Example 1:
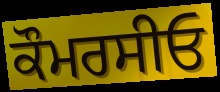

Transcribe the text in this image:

ਕੌਮਰਸੀਓ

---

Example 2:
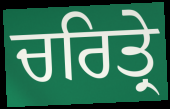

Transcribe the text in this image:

ਚਰਿਤ੍ਰੇ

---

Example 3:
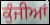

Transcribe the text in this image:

ਕੁੰਜੀਆਂ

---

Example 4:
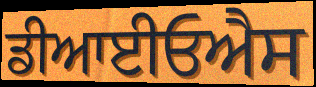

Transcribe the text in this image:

ਡੀਆਈਓਐਸ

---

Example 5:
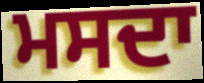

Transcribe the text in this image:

ਮਸਦਾ